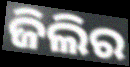
ଜିଲିର